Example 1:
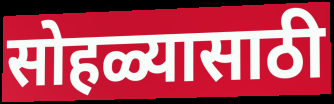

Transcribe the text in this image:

सोहळ्यासाठी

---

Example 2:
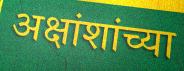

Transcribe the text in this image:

अक्षांशांच्या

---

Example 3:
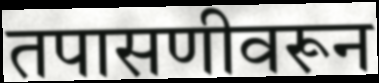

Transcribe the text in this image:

तपासणीवरून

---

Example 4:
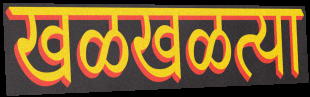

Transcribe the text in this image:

खळखळत्या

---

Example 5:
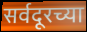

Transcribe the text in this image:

सर्वदूरच्या